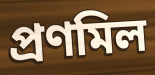
প্রণমিল